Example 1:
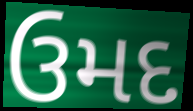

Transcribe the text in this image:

ઉમદ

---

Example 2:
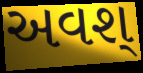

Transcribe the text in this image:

અવશ્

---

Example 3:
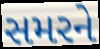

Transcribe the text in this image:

સમરને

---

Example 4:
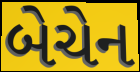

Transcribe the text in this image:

બેચેન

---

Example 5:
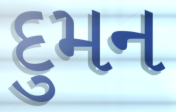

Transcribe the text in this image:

દુમન